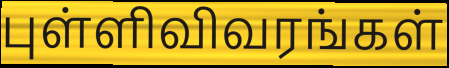
புள்ளிவிவரங்கள்